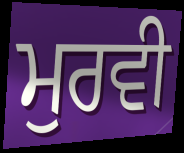
ਮੁਰਵੀ